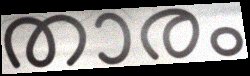
താരം